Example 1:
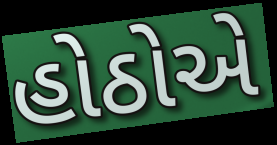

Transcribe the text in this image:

હોઠોએ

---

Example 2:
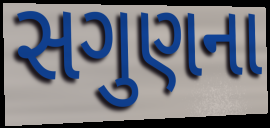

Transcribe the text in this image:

સગુણના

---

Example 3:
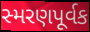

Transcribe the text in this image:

સ્મરણપૂર્વક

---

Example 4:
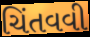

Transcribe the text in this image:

ચિંતવવી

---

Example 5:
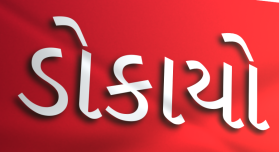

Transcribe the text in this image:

ડોકાયો